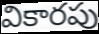
వికారపు